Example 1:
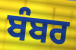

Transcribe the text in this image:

ਬੰਬਰ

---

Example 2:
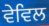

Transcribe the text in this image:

ਵੇਵਿਲ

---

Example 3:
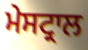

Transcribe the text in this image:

ਮੇਸਟ੍ਰਾਲ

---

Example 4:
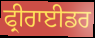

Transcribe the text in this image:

ਫ੍ਰੀਰਾਈਡਰ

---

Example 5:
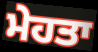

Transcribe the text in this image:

ਮੇਹਤਾ